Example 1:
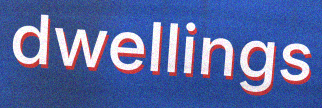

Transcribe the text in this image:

dwellings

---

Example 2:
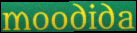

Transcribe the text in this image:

moodida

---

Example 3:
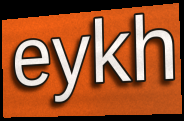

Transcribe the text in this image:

eykh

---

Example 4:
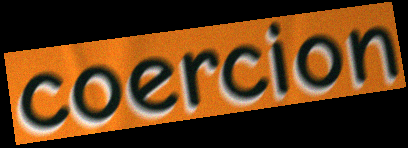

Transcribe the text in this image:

coercion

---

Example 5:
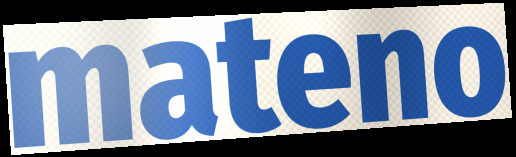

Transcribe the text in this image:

mateno